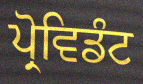
ਪ੍ਰੋਵਿਡੰਟ